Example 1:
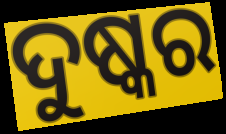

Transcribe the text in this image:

ଦୁଷ୍କର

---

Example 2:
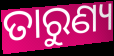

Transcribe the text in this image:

ତାରୁଣ୍ୟ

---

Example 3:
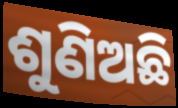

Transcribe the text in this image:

ଶୁଣିଅଛି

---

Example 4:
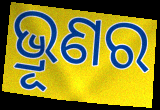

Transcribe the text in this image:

ଭ୍ରୂଣର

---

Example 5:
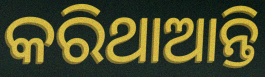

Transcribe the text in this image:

କରିଥାଆନ୍ତି